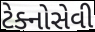
ટેક્નોસેવી